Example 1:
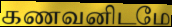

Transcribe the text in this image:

கணவனிடமே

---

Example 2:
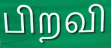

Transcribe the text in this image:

பிறவி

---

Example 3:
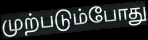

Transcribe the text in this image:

முற்படும்போது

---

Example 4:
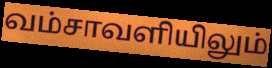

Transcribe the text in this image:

வம்சாவளியிலும்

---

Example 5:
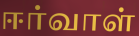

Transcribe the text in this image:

ஈர்வாள்